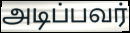
அடிப்பவர்